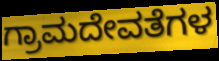
ಗ್ರಾಮದೇವತೆಗಳ